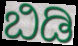
ಬಿಡಿ